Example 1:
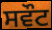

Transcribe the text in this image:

ਸਵੌਟ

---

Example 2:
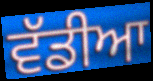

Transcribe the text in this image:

ਵੱਡੀਆ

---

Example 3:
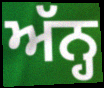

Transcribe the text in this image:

ਅੱਨ੍ਹ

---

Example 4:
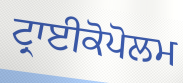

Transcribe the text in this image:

ਟ੍ਰਾਈਕੋਪੋਲਮ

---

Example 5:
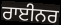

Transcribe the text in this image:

ਰਾਈਨਰ